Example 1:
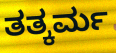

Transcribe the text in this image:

ತತ್ಕರ್ಮ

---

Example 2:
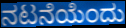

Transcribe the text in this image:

ನಟನೆಯೆಂದು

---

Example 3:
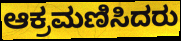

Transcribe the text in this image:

ಆಕ್ರಮಣಿಸಿದರು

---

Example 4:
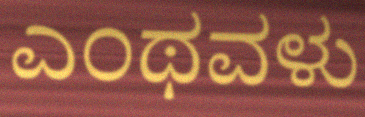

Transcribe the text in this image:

ಎಂಥವಳು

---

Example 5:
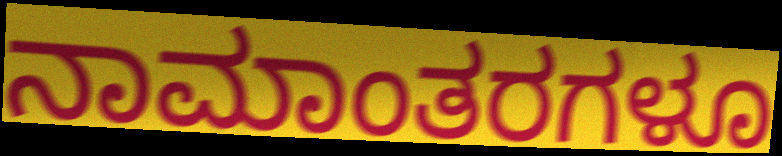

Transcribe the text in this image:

ನಾಮಾಂತರಗಳೂ